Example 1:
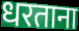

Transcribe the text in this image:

धरताना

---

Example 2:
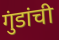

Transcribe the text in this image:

गुंडांची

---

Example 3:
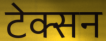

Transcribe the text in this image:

टेक्सन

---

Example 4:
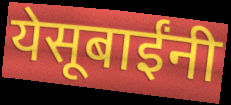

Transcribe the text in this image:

येसूबाईंनी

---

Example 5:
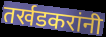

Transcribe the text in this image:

तर्खडकरांनी